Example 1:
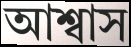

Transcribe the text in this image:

আশ্বাস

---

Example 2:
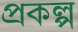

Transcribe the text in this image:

প্ৰকল্প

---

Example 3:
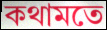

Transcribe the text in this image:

কথামতে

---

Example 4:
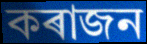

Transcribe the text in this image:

কৰাজন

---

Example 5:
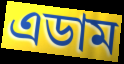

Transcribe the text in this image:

এডাম